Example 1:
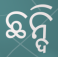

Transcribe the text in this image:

ଛନ୍ଦି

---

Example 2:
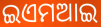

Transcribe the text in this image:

ଇଏମଆଇ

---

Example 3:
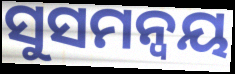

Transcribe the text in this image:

ସୁସମନ୍ୱୟ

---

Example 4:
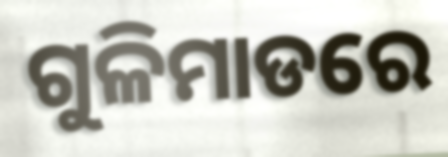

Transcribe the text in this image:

ଗୁଳିମାଡରେ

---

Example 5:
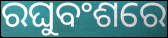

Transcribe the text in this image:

ରଘୁବଂଶରେ